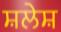
ਸ਼ਲੇਸ਼